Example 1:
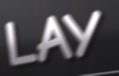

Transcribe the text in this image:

LAY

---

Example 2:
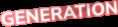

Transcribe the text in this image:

GENERATION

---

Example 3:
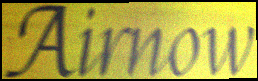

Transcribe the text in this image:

Airnow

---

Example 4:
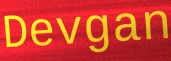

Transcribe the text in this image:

Devgan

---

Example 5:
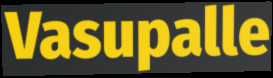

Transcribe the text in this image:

Vasupalle